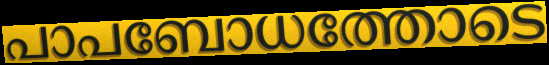
പാപബോധത്തോടെ